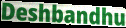
Deshbandhu